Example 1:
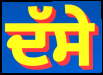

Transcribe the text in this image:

ਦੱਸੇ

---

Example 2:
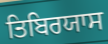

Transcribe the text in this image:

ਤਿਬਿਰਯਾਸ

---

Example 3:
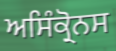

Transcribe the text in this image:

ਅਸਿੰਕ੍ਰੋਨਸ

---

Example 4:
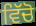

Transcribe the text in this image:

ਵਿੱਚੋ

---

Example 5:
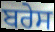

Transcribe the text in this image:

ਬਰੇਸ